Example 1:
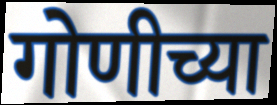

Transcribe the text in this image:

गोणीच्या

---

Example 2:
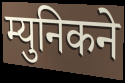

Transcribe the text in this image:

म्युनिकने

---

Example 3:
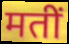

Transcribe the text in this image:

मतीं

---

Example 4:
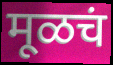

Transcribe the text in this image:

मूळचं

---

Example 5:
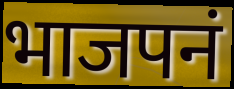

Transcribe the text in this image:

भाजपनं